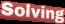
Solving